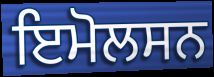
ਇਮੋਲਸਨ